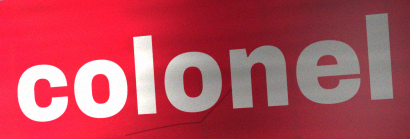
colonel